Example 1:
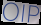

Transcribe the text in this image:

OIP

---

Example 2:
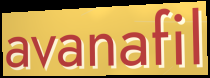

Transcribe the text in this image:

avanafil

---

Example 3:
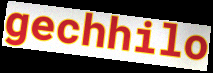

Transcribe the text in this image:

gechhilo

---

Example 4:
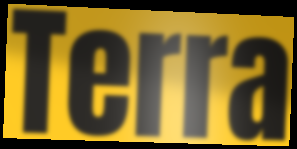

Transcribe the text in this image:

Terra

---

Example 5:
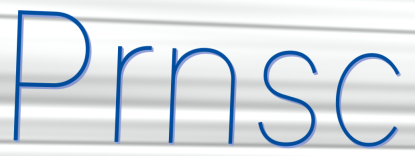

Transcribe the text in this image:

Prnsc